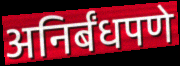
अनिर्बंधपणे